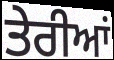
ਤੇਰੀਆਂ